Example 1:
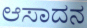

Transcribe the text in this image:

ಆಸಾದನ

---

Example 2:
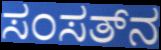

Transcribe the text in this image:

ಸಂಸತ್‌ನ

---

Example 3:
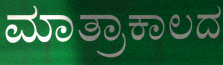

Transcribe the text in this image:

ಮಾತ್ರಾಕಾಲದ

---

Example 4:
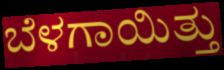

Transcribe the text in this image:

ಬೆಳಗಾಯಿತ್ತು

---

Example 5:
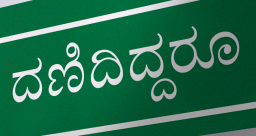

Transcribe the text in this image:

ದಣಿದಿದ್ದರೂ